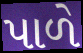
પાળે